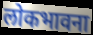
लोकभावना